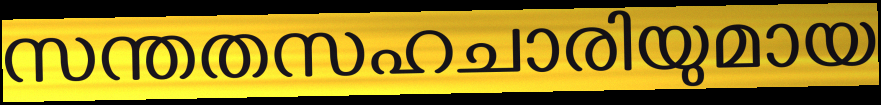
സന്തതസഹചാരിയുമായ